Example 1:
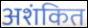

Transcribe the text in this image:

अशंकित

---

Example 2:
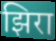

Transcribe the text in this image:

झिरा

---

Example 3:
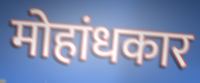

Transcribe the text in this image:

मोहांधकार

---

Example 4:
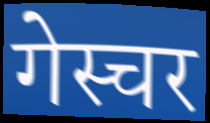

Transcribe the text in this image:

गेस्चर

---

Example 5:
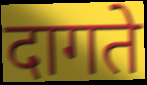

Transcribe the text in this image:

दागते